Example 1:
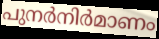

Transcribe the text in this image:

പുനർനിർമാണം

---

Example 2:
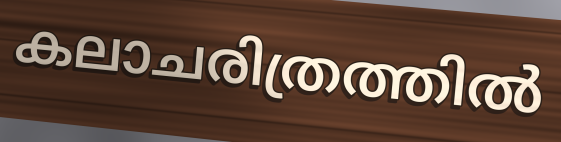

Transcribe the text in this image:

കലാചരിത്രത്തിൽ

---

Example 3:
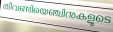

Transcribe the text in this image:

തീവണ്ടിയെഞ്ചിനുകളുടെ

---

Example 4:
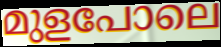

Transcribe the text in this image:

മുളപോലെ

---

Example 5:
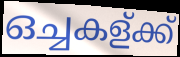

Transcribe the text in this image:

ഒച്ചകള്ക്ക്